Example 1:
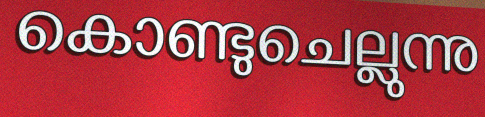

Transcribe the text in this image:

കൊണ്ടുചെല്ലുന്നു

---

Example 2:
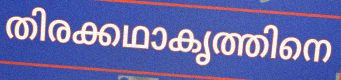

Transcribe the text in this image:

തിരക്കഥാകൃത്തിനെ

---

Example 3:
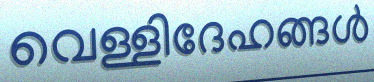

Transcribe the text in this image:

വെള്ളിദേഹങ്ങൾ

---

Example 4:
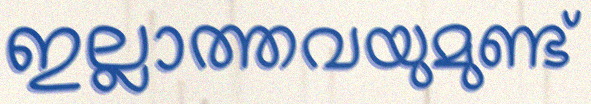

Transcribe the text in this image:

ഇല്ലാത്തവയുമുണ്ട്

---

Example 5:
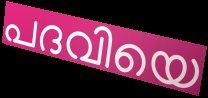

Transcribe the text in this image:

പദവിയെ